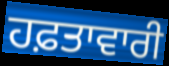
ਹਫ਼ਤਾਵਾਰੀ